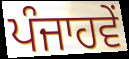
ਪੰਜਾਹਵੇਂ